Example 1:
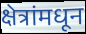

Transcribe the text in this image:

क्षेत्रांमधून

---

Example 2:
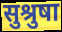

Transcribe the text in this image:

सुश्रुषा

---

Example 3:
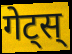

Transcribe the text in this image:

गेट्स्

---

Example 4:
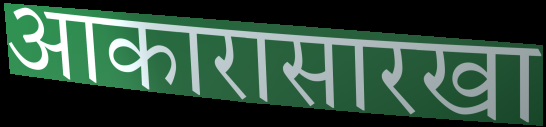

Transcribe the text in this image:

आकारासारखा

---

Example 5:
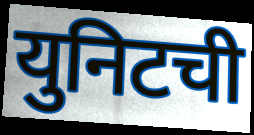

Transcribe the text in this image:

युनिटची